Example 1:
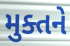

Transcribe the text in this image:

મુક્તને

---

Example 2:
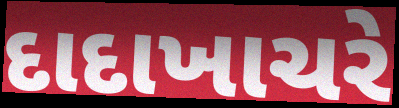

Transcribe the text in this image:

દાદાખાચરે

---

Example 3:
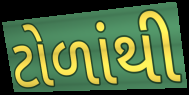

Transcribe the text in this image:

ટોળાંથી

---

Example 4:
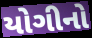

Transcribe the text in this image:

યોગીનો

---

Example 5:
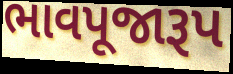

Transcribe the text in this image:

ભાવપૂજારૂપ